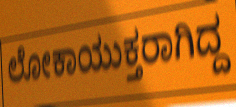
ಲೋಕಾಯುಕ್ತರಾಗಿದ್ದ